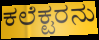
ಕಲೆಕ್ಟರನು